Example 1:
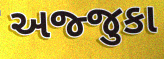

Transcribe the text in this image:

અજ્જુકા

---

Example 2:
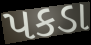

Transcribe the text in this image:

પકડા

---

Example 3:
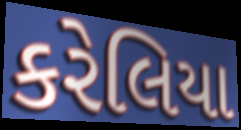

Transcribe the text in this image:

કરેલિયા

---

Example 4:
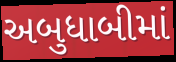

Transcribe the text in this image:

અબુધાબીમાં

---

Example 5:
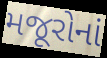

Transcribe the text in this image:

મજૂરોનાં